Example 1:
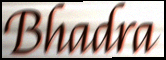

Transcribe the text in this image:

Bhadra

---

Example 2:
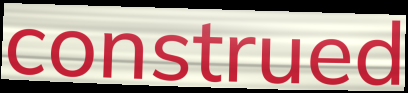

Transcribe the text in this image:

construed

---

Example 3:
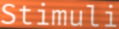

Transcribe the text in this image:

Stimuli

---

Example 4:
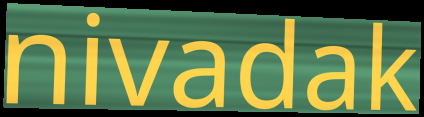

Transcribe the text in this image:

nivadak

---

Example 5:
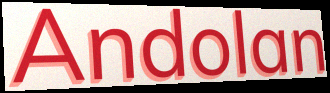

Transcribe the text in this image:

Andolan